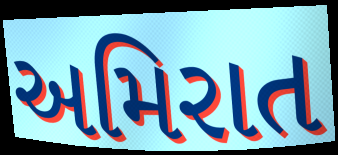
અમિરાત